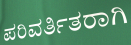
ಪರಿವರ್ತಿತರಾಗಿ